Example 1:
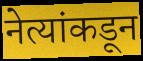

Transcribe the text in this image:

नेत्यांकडून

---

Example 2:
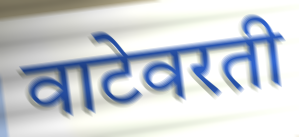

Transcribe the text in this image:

वाटेवरती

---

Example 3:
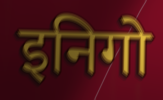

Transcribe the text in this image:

इनिगो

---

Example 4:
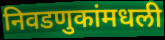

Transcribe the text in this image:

निवडणुकांमधली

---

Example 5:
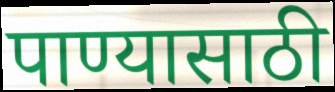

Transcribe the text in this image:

पाण्यासाठी